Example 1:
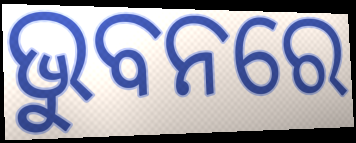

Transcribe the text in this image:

ଭୁବନରେ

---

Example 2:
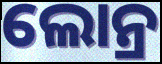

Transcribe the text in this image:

ଲୋନ୍ର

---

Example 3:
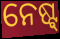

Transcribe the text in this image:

ନେଷ୍ଟ୍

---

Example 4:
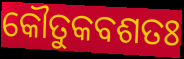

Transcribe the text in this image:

କୌତୁକବଶତଃ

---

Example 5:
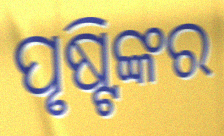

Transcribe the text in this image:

ପୃଷ୍ଟିଙ୍କର